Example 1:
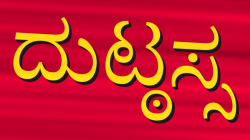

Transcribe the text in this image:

ದುಟ್ಠಸ್ಸ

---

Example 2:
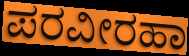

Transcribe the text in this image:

ಪರವೀರಹಾ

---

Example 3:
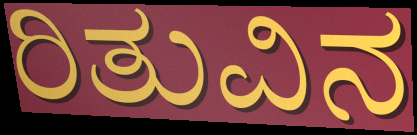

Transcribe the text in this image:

ರಿತುವಿನ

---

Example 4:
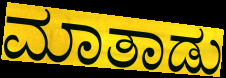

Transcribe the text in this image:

ಮಾತಾಡು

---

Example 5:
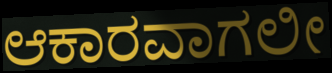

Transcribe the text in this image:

ಆಕಾರವಾಗಲೀ